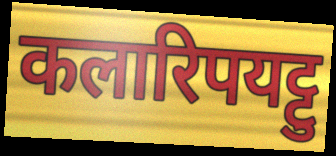
कलारिपयट्टु